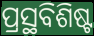
ପ୍ରସ୍ଥବିଶିଷ୍ଟ